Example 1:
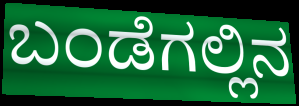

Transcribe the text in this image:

ಬಂಡೆಗಲ್ಲಿನ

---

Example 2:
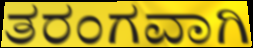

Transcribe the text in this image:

ತರಂಗವಾಗಿ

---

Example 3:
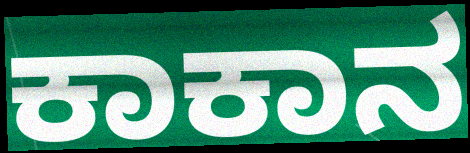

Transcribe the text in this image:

ಕಾಕಾನ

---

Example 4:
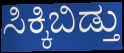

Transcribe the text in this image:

ಸಿಕ್ಕಿಬಿಡ್ತು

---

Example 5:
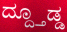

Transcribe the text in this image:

ದ್ದ್ತೂಡ್ಡ